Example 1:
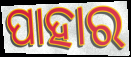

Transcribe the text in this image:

ପାହାର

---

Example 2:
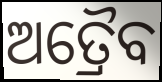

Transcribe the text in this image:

ଅତ୍ରୈବ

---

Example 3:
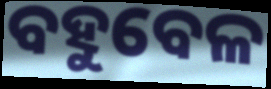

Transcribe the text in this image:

ବହୁବେଳ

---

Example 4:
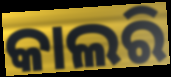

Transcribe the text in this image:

କାଲରି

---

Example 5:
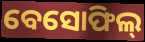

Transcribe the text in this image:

ବେସୋଫିଲ୍